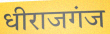
धीराजगंज